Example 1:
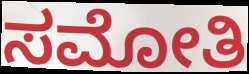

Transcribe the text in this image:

ಸಮೋತಿ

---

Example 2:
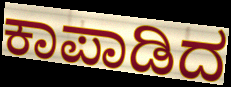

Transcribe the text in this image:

ಕಾಪಾಡಿದ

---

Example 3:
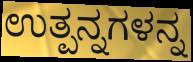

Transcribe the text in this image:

ಉತ್ಪನ್ನಗಳನ್ನ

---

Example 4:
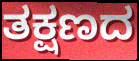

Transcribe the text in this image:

ತಕ್ಷಣದ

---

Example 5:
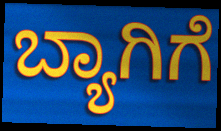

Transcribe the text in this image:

ಬ್ಯಾಗಿಗೆ